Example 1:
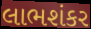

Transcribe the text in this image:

લાભશંકર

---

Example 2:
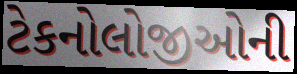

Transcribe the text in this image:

ટેકનોલોજીઓની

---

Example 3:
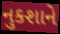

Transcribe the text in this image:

નુકશાને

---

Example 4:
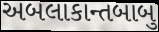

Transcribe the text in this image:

અબલાકાન્તબાબુ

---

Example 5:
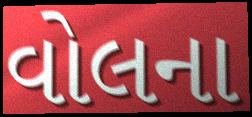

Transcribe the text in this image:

વોલના